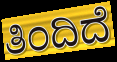
ತಿಂದಿದೆ